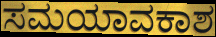
ಸಮಯಾವಕಾಶ